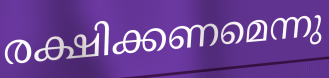
രക്ഷിക്കണമെന്നു